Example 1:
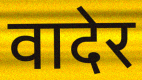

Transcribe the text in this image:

वादेर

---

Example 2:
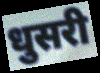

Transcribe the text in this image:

धुसरी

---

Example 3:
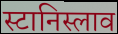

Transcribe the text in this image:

स्टानिस्लाव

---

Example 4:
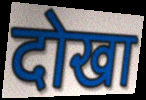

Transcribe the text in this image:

दोखा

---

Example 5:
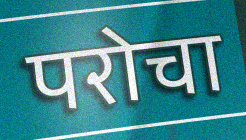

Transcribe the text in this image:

परोचा